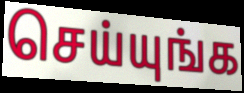
செய்யுங்க